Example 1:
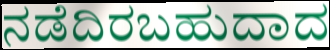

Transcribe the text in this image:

ನಡೆದಿರಬಹುದಾದ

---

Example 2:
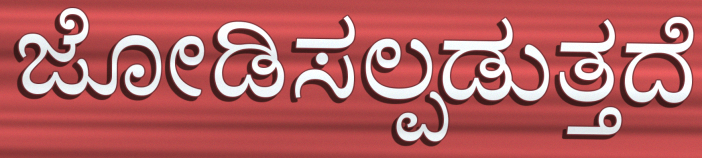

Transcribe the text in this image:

ಜೋಡಿಸಲ್ಪಡುತ್ತದೆ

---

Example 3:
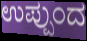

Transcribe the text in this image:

ಉಪ್ಪುಂದ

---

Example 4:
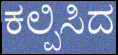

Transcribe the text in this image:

ಕಲ್ಪಿಸಿದ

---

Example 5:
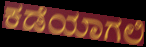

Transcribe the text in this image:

ಕಡೆಯಾಗಲಿ